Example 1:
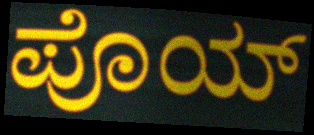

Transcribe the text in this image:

ಪೊಯ್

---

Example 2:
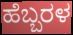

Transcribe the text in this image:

ಹೆಬ್ಬರಳ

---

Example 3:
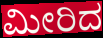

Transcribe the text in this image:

ಮೀರಿದ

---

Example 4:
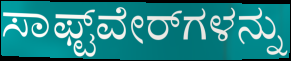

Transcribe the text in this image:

ಸಾಫ್ಟ್‌ವೇರ್‌ಗಳನ್ನು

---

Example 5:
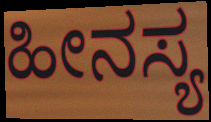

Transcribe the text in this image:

ಹೀನಸ್ಯ